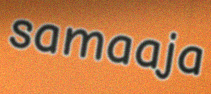
samaaja